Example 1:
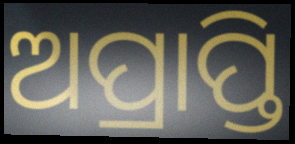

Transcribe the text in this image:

ଅପ୍ରାପ୍ତି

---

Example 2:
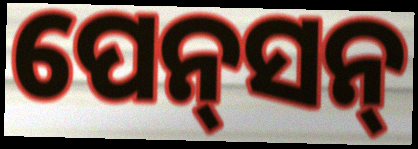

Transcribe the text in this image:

ପେନ୍‍ସନ୍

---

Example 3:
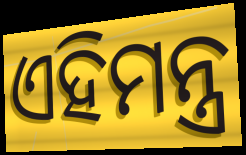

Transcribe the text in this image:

ଏହିମନ୍ତ୍ର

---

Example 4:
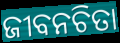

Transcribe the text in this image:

ଜୀବନଚିତା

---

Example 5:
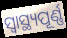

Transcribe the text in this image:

ସ୍ବାସ୍ଥ୍ୟପୂର୍ଣ୍ଣ